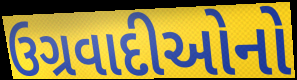
ઉગ્રવાદીઓનો